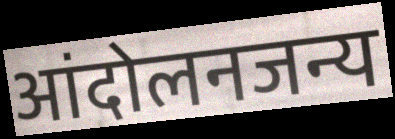
आंदोलनजन्य